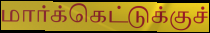
மார்க்கெட்டுக்குச்